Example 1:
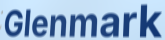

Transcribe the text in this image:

Glenmark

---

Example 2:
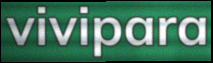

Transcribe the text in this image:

vivipara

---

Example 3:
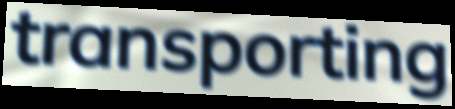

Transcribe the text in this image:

transporting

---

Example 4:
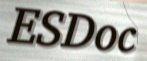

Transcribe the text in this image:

ESDoc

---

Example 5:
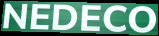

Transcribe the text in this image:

NEDECO